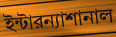
ইন্টারন্যাশানাল